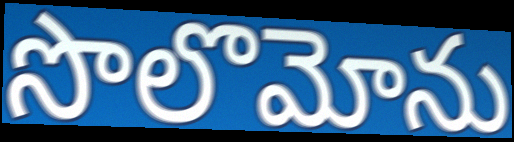
సొలొమోను